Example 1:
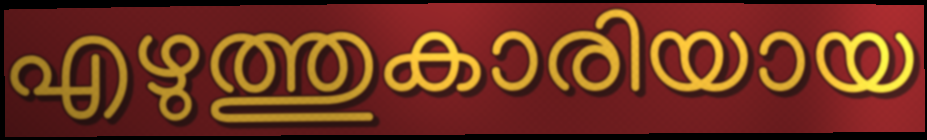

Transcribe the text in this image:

എഴുത്തുകാരിയായ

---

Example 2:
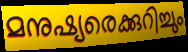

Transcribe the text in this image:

മനുഷ്യരെക്കുറിച്ചും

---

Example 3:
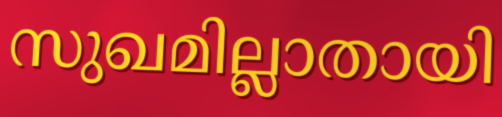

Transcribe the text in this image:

സുഖമില്ലാതായി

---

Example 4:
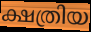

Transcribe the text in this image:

ക്ഷത്രിയ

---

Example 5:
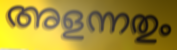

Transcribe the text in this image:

അളന്നതും